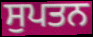
ਸੁਪਤਨ